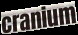
cranium